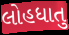
લોહધાતુ